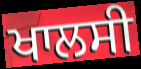
ਖਾਲਸੀ